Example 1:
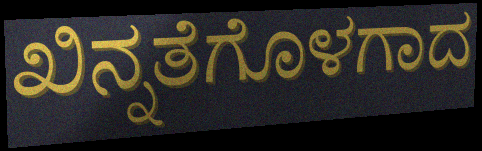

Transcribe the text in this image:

ಖಿನ್ನತೆಗೊಳಗಾದ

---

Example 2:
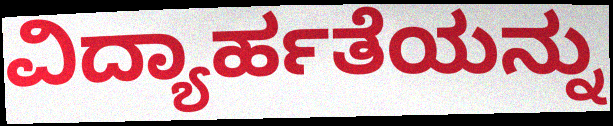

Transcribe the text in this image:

ವಿದ್ಯಾರ್ಹತೆಯನ್ನು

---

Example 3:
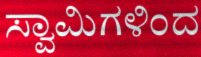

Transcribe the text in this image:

ಸ್ವಾಮಿಗಳಿಂದ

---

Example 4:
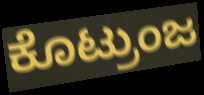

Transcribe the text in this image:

ಕೊಟ್ರುಂಜ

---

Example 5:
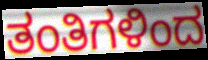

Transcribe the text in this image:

ತಂತಿಗಳಿಂದ